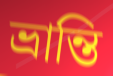
ভ্রান্তি